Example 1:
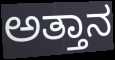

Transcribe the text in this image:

ಅತ್ತಾನ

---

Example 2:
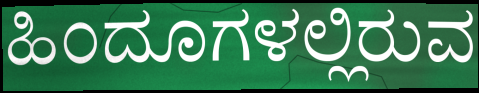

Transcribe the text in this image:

ಹಿಂದೂಗಳಲ್ಲಿರುವ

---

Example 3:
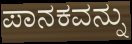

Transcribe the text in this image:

ಪಾನಕವನ್ನು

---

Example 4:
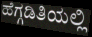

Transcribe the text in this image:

ಹೆಗ್ಗಡಿತಿಯಲ್ಲಿ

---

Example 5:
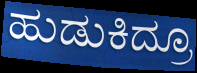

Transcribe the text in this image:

ಹುಡುಕಿದ್ರೂ